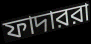
ফাদাররা